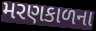
મરણકાળના